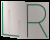
LR